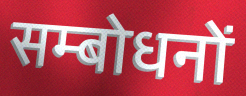
सम्बोधनों